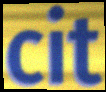
cit